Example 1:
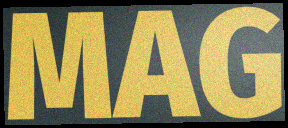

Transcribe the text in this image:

MAG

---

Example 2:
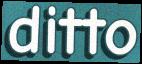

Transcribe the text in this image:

ditto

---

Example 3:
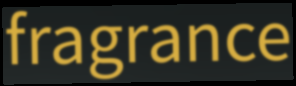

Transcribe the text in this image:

fragrance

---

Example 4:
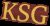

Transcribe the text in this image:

KSG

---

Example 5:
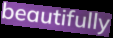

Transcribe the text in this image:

beautifully